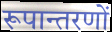
रूपान्तरणों